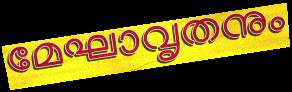
മേഘാവൃതനും